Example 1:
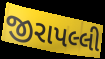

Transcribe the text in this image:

જીરાપલ્લી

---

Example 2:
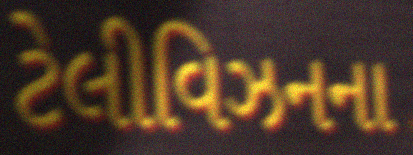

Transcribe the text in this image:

ટેલીવિઝનના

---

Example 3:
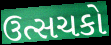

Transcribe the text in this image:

ઉત્સચકો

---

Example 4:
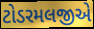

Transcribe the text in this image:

ટોડરમલજીએ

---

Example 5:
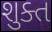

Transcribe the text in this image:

શુક્ત